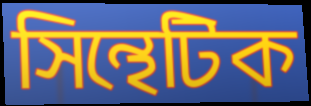
সিন্থেটিক